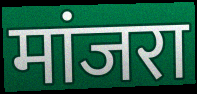
मांजरा